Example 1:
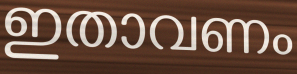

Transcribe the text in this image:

ഇതാവണം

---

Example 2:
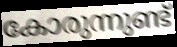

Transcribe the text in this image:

കോരുന്നുണ്ട്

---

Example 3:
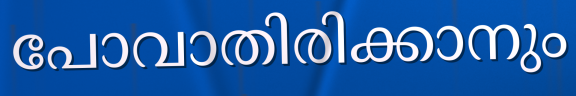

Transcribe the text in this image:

പോവാതിരിക്കാനും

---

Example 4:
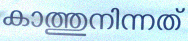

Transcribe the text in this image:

കാത്തുനിന്നത്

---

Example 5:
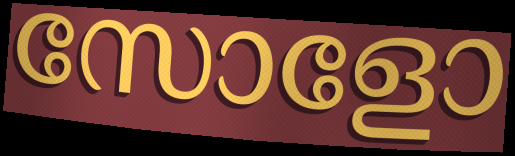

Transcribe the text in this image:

സോളോ